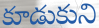
కూడుకుని